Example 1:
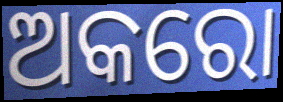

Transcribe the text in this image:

ଅକରୋ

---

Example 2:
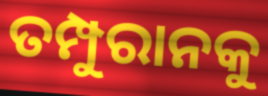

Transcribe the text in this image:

ତମ୍ପୁରାନକୁ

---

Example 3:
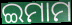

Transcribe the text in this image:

ଇମାମ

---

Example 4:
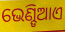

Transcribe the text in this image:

ଭେଣ୍ଡିଆଏ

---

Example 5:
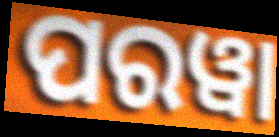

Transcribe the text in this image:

ପରୱା